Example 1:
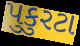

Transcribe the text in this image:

પુકુરટા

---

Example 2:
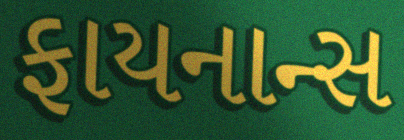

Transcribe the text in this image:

ફાયનાન્સ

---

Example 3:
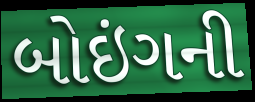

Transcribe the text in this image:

બોઇંગની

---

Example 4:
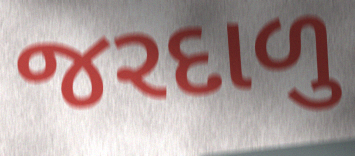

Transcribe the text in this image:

જરદાળુ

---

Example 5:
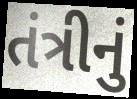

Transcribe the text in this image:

તંત્રીનું